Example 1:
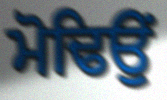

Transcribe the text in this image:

ਮੋਢਿਉਂ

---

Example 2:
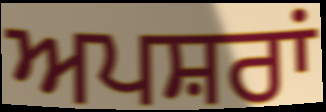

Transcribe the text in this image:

ਅਪਸ਼ਰਾਂ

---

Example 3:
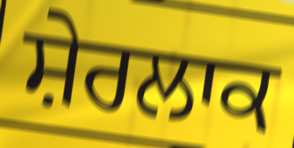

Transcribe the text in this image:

ਸ਼ੇਰਲਾਕ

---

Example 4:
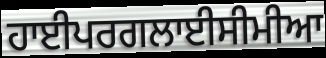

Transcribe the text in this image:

ਹਾਈਪਰਗਲਾਈਸੀਮੀਆ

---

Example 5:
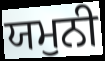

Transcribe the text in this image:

ਯਮੁਨੀ